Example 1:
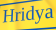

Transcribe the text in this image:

Hridya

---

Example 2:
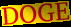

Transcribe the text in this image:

DOGE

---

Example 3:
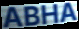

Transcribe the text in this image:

ABHA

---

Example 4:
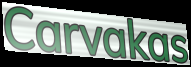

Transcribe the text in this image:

Carvakas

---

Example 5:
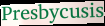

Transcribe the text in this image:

Presbycusis